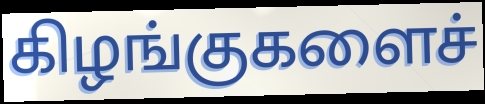
கிழங்குகளைச்